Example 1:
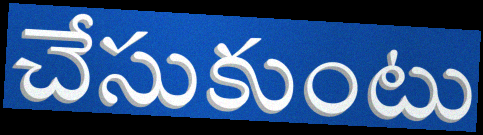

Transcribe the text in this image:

చేసుకుంటు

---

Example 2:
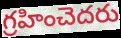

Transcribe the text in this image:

గ్రహించెదరు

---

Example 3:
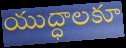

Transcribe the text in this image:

యుద్ధాలకూ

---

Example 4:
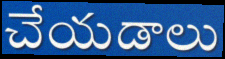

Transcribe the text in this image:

చేయడాలు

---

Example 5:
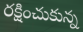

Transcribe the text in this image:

రక్షించుకున్న